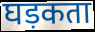
घड़कता